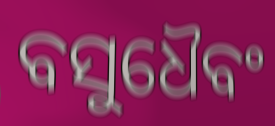
ବସୁଧୈବଂ